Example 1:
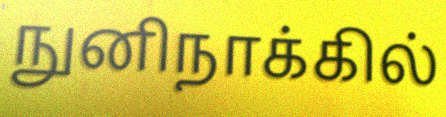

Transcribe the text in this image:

நுனிநாக்கில்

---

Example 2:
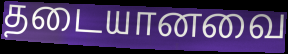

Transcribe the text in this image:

தடையானவை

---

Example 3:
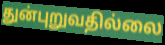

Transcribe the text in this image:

துன்புறுவதில்லை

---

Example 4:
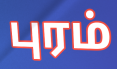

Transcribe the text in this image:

புரம்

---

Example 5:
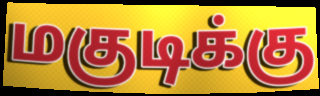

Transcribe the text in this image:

மகுடிக்கு